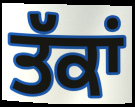
ਤੱਕਾਂ